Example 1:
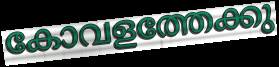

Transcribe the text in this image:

കോവളത്തേക്കു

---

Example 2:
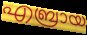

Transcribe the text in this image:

എബ്രായ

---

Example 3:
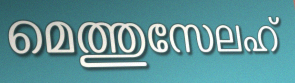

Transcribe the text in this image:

മെത്തുസേലഹ്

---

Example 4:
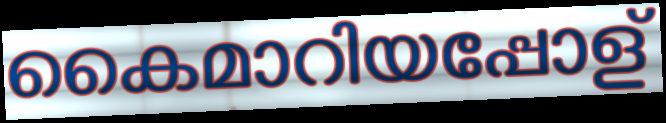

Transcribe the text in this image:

കൈമാറിയപ്പോള്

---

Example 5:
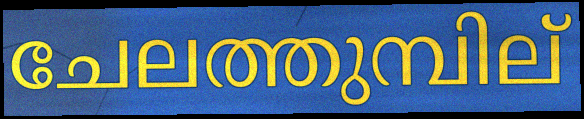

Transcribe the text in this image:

ചേലത്തുമ്പില്